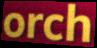
orch